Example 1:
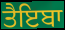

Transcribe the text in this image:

ਤੈਇਬਾ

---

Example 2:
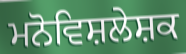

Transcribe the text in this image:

ਮਨੋਵਿਸ਼ਲੇਸ਼ਕ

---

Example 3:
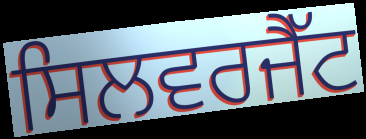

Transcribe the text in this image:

ਸਿਲਵਰਜੈੱਟ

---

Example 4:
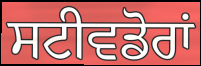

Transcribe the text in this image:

ਸਟੀਵਡੋਰਾਂ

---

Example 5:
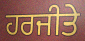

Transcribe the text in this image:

ਹਰਜੀਤੇ